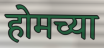
होमच्या